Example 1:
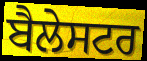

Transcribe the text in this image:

ਬੈਲੇਸਟਰ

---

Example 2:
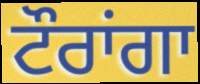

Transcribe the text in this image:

ਟੌਰਾਂਗਾ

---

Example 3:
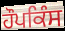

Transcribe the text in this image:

ਹੌਪਕਿੰਸ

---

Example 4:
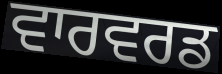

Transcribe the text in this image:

ਵਾਰਵਰਡ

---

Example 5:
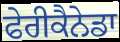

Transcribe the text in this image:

ਫੇਰੀਕੈਨੇਡਾ